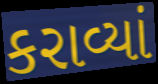
કરાવ્યાં